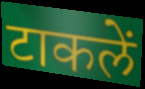
टाकलें